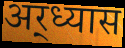
अर्ध्यास